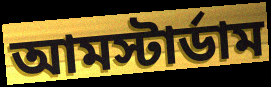
আমস্টার্ডাম